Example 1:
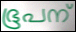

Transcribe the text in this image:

ഭൂപന്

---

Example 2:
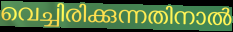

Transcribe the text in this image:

വെച്ചിരിക്കുന്നതിനാൽ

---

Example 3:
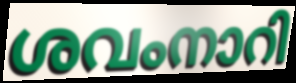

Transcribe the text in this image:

ശവംനാറി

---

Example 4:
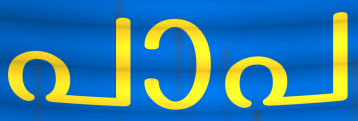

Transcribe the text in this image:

പാപ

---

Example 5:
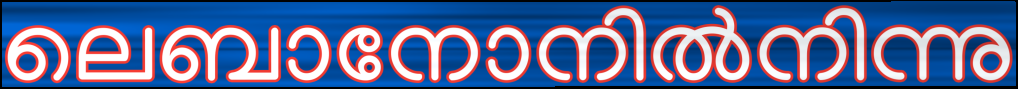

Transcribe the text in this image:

ലെബാനോനിൽനിന്നു